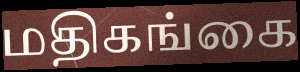
மதிகங்கை